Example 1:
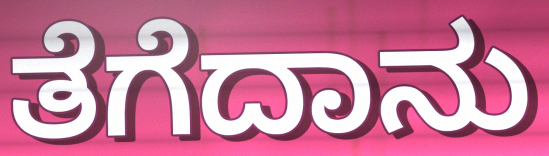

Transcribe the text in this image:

ತೆಗೆದಾನು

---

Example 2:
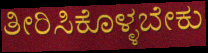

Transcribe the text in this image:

ತೀರಿಸಿಕೊಳ್ಳಬೇಕು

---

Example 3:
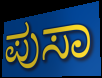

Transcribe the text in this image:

ಪುಸಾ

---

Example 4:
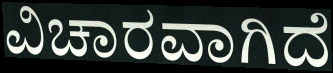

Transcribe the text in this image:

ವಿಚಾರವಾಗಿದೆ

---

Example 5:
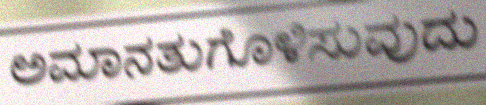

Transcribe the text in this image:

ಅಮಾನತುಗೊಳಿಸುವುದು